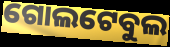
ଗୋଲଟେବୁଲ